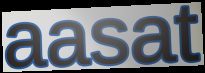
aasat